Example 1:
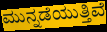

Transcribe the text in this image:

ಮುನ್ನಡೆಯುತ್ತಿವೆ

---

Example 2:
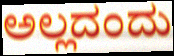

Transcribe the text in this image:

ಅಲ್ಲದಂದು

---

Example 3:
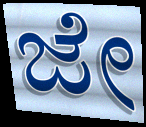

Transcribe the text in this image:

ಜೇ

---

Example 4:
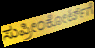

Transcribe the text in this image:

ಸುಪ್ರೀಂಕೋರ್ಟ್‌ಗೆ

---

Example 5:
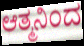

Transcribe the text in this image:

ಆತ್ಮನಿಂದ